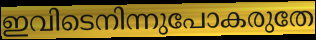
ഇവിടെനിന്നുപോകരുതേ